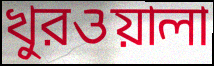
খুরওয়ালা